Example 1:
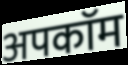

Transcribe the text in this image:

अपकॉम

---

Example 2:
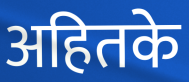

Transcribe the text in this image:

अहितके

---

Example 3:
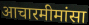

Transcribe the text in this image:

आचारमीमांसा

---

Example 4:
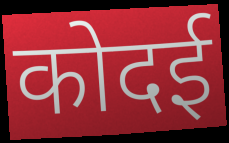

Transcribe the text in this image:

कोदई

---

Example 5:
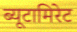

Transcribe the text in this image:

ब्यूटामिरेट